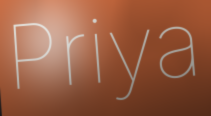
Priya